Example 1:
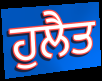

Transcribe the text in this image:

ਹੁਲੈਤ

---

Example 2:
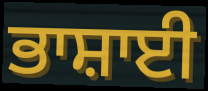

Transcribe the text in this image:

ਭਾਸ਼ਾਈ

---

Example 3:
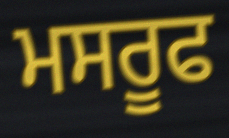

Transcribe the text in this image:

ਮਸਰੂਫ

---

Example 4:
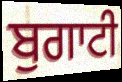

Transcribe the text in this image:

ਬੁਗਾਟੀ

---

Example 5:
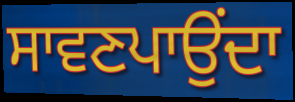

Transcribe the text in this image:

ਸਾਵਣਪਾਉਂਦਾ